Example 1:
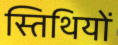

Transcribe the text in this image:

स्तिथियों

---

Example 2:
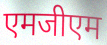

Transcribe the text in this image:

एमजीएम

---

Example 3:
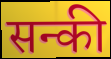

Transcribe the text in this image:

सन्की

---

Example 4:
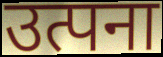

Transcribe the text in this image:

उत्पना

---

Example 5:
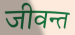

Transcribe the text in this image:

जीवन्त